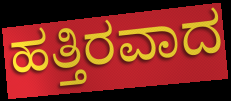
ಹತ್ತಿರವಾದ